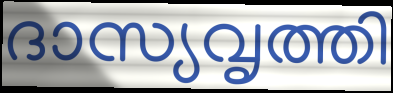
ദാസ്യവൃത്തി